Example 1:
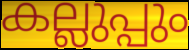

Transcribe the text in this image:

കല്ലുപ്പും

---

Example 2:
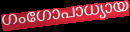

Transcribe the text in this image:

ഗംഗോപാധ്യായ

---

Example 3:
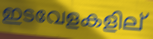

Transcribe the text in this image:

ഇടവേളകളില്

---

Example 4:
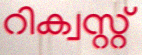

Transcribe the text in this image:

റിക്വസ്റ്റ്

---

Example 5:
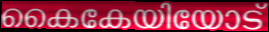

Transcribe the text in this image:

കൈകേയിയോട്